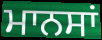
ਮਾਨਸਾਂ